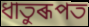
ধাতুৰূপত